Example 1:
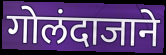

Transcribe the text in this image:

गोलंदाजाने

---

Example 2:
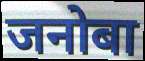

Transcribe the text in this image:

जनोबा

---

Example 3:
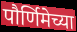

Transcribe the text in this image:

पौर्णिमेच्या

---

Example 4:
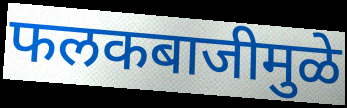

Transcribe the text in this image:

फलकबाजीमुळे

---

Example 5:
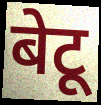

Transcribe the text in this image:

बेटू